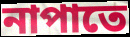
নাপাতে